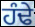
ਹੰਢੇ